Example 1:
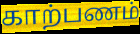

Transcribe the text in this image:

காற்பணம்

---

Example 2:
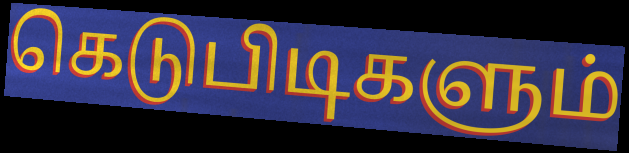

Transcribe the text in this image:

கெடுபிடிகளும்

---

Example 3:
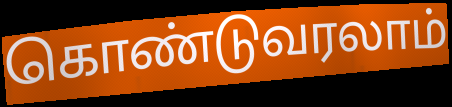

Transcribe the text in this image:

கொண்டுவரலாம்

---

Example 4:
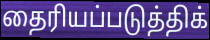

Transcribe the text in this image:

தைரியப்படுத்திக்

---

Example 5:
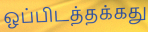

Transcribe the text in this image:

ஒப்பிடத்தக்கது